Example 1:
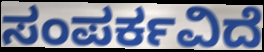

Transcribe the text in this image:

ಸಂಪರ್ಕವಿದೆ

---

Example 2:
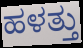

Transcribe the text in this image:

ಹಳತ್ತು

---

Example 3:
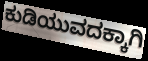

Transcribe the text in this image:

ಕುಡಿಯುವದಕ್ಕಾಗಿ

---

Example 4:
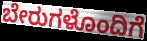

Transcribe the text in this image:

ಬೇರುಗಳೊಂದಿಗೆ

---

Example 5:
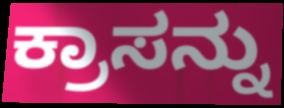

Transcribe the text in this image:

ಕ್ರಾಸನ್ನು